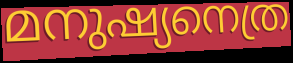
മനുഷ്യനെത്ര